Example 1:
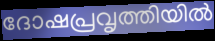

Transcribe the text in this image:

ദോഷപ്രവൃത്തിയിൽ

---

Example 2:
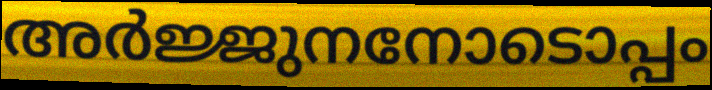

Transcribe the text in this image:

അർജ്ജുനനോടൊപ്പം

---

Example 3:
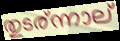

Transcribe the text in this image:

തുടര്ന്നാല്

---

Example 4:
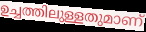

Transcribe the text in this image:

ഉച്ചത്തിലുള്ളതുമാണ്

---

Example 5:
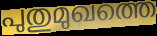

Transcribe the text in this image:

പുതുമുഖത്തെ